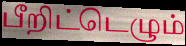
பீறிட்டெழும்